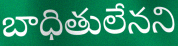
బాధితులేనని